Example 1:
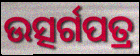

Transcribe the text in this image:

ଉତ୍ସର୍ଗପତ୍ର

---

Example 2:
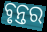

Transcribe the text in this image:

ବୃନ୍ତର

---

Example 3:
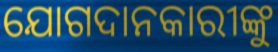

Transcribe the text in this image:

ଯୋଗଦାନକାରୀଙ୍କୁ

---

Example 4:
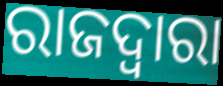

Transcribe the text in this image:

ରାଜଦ୍ୱାରା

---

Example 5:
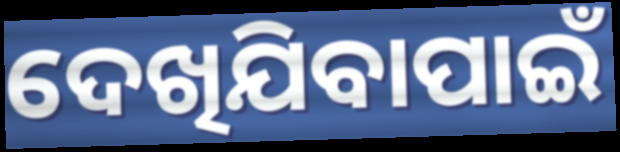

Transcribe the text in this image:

ଦେଖିଯିବାପାଇଁ